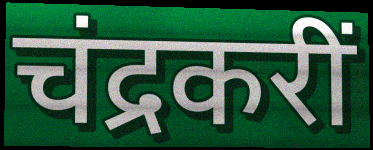
चंद्रकरीं